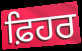
ਫ਼ਿਹਰ